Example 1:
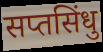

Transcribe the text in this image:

सप्तसिंधु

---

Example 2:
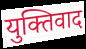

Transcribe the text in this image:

युक्तिवाद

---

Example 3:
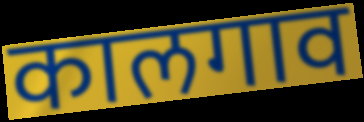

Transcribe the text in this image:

कालगाव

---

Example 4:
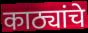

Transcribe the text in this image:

काठ्यांचे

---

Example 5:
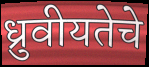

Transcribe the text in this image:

ध्रुवीयतेचे